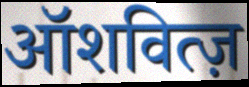
ऑशवित्ज़